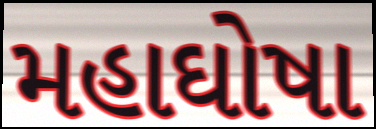
મહાઘોષા